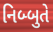
નિબ્બુતે